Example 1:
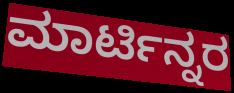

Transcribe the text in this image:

ಮಾರ್ಟಿನ್ನರ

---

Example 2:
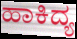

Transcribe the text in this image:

ಹಾಕಿದ್ಯ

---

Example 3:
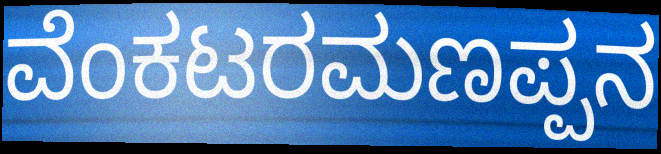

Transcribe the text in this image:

ವೆಂಕಟರಮಣಪ್ಪನ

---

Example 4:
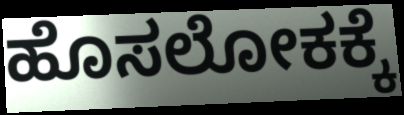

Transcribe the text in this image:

ಹೊಸಲೋಕಕ್ಕೆ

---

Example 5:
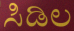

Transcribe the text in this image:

ಸಿಡಿಲ